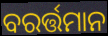
ବରର୍ତ୍ତମାନ